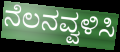
ನೆಲನವ್ವಳಿಸಿ